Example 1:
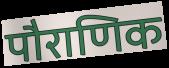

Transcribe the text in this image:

पौराणिक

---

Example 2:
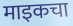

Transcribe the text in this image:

माइकचा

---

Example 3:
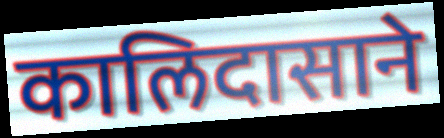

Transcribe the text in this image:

कालिदासाने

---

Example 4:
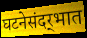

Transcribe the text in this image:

घटनेसंदर्भात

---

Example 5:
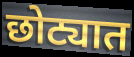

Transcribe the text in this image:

छोट्यात